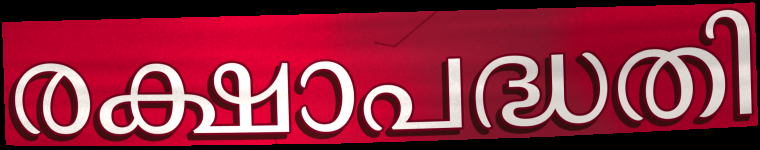
രക്ഷാപദ്ധതി